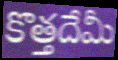
కొత్తదేమీ